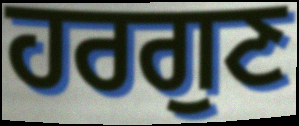
ਹਰਗੁਣ